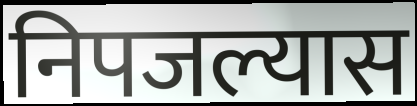
निपजल्यास